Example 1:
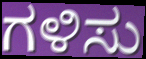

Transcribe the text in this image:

ಗಳಿಸು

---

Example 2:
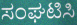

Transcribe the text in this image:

ಸಂಘಟಿಸಿ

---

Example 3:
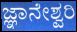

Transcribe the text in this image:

ಜ್ಞಾನೇಶ್ವರಿ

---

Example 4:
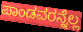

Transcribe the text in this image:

ಪಾಂಡವರನ್ನೆಲ್ಲ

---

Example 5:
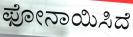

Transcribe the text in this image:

ಫೋನಾಯಿಸಿದೆ